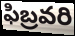
ఫిబ్రవరి